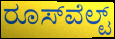
ರೂಸ್‍ವೆಲ್ಟ್